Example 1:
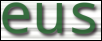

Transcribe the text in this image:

eus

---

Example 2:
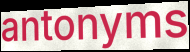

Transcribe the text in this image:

antonyms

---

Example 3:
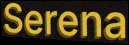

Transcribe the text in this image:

Serena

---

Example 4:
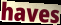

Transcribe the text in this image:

haves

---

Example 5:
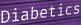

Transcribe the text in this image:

Diabetics